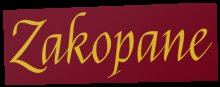
Zakopane